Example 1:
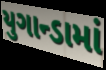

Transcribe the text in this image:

યુગાન્ડામાં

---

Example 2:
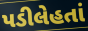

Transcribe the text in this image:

પડીલેહતાં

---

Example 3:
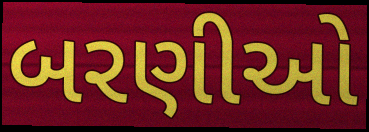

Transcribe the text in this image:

બરણીઓ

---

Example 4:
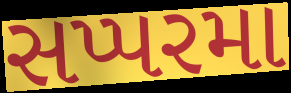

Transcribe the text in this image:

સપ્પરમા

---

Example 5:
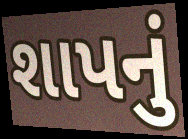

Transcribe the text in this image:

શાપનું